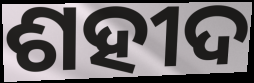
ଶହୀଦ